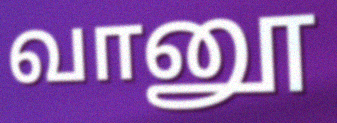
வானூ